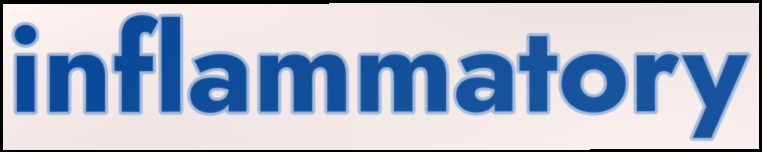
inflammatory